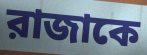
রাজাকে